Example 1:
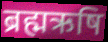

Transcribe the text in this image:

ब्रह्मऋषि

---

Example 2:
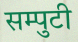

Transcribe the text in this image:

सम्पुटी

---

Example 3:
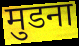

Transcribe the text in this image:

मुडना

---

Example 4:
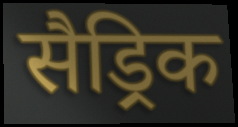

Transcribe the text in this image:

सैड्रिक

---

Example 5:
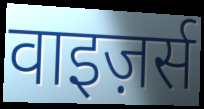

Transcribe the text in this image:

वाइज़र्स